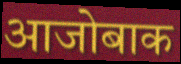
आजोबाक